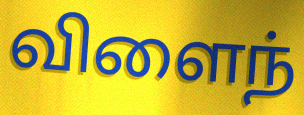
விளைந்